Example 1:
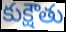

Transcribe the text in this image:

కుక్షౌతు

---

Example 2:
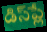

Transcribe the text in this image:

డిస్‌ప్లే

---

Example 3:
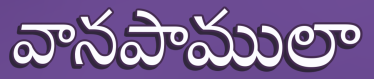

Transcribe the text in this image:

వానపాములా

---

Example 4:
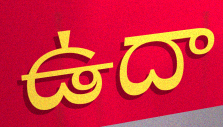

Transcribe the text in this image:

ఉదా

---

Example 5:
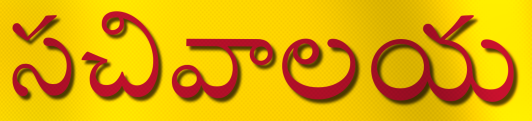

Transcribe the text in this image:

సచివాలయ